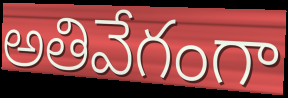
అతివేగంగా